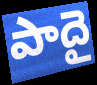
పాదై